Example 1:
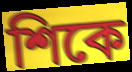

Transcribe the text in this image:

শিকে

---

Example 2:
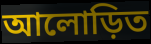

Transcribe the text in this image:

আলোড়িত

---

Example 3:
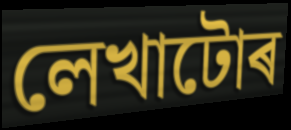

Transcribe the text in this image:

লেখাটোৰ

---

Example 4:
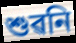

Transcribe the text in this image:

শুৱনি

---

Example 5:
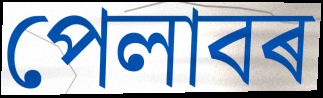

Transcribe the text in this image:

পেলাবৰ